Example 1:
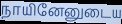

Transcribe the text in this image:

நாயினேனுடைய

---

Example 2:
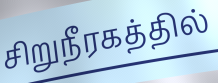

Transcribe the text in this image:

சிறுநீரகத்தில்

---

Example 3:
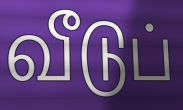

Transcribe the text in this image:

வீடுப்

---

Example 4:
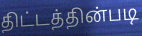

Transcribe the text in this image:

திட்டத்தின்படி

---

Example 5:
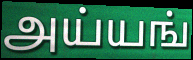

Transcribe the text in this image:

அய்யங்